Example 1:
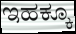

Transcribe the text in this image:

ಇಹಕ್ಕೂ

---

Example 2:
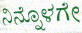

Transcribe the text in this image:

ನಿನ್ನೊಳಗೇ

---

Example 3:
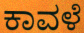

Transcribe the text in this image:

ಕಾವಳೆ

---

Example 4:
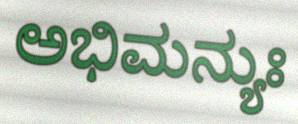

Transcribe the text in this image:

ಅಭಿಮನ್ಯುಃ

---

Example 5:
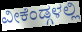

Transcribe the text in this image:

ವೀಕೆಂಡ್ಗಳಲ್ಲಿ